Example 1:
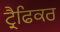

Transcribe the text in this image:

ਟ੍ਰੈਫਿਕਰ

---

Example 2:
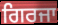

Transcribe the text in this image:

ਗਿਰਜਾ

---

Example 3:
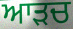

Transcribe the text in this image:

ਆੜਚ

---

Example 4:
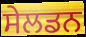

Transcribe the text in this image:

ਸੇਲਡਨ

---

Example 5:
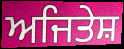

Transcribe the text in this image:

ਅਜਿਤੇਸ਼